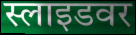
स्‍लाइडवर